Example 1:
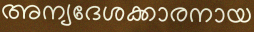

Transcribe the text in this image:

അന്യദേശക്കാരനായ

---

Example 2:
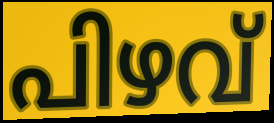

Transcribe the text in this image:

പിഴവ്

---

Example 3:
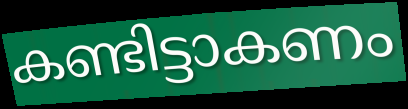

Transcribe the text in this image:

കണ്ടിട്ടാകണം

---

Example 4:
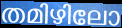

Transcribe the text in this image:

തമിഴിലോ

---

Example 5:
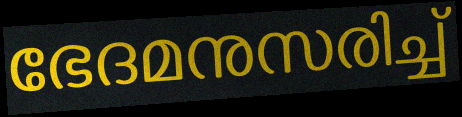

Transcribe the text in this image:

ഭേദമനുസരിച്ച്